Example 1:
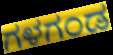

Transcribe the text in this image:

ಗಳಗಂಡ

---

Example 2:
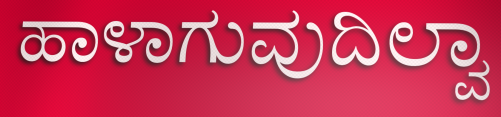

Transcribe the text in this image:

ಹಾಳಾಗುವುದಿಲ್ವಾ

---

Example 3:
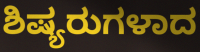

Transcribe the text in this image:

ಶಿಷ್ಯರುಗಳಾದ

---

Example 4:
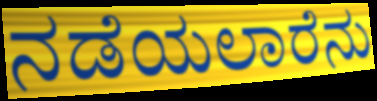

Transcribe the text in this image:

ನಡೆಯಲಾರೆನು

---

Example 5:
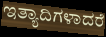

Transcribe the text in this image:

ಇತ್ಯಾದಿಗಳಾದರೆ